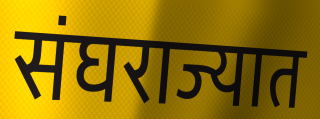
संघराज्यात